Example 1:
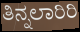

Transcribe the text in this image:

ತಿನ್ನಲಾರಿರಿ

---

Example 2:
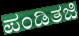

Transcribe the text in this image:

ಪಂಡಿತಜಿ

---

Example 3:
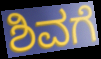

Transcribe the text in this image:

ಶಿವಗೆ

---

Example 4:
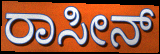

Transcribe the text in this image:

ರಾಸೀನ್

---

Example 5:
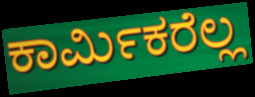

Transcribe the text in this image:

ಕಾರ್ಮಿಕರೆಲ್ಲ